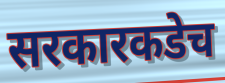
सरकारकडेच